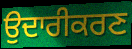
ਉਦਾਰੀਕਰਣ